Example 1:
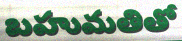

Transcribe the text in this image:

బహుమతితో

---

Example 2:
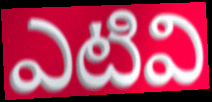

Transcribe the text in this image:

ఎటివి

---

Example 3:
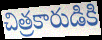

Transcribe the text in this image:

చిత్రకారుడికి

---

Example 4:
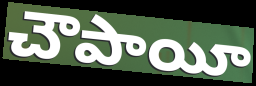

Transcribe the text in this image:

చౌపాయీ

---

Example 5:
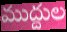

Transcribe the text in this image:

ముద్దుల